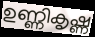
ഉണ്ണികൃഷ്ണ